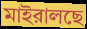
মাইরালছে